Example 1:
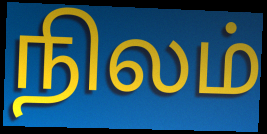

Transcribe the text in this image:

நிலம்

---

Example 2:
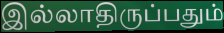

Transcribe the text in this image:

இல்லாதிருப்பதும்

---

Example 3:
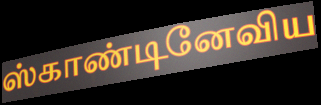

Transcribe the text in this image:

ஸ்காண்டினேவிய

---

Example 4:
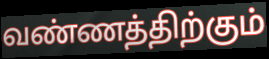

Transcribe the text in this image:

வண்ணத்திற்கும்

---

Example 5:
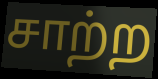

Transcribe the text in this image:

சாற்ற